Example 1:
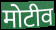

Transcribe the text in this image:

मोटीव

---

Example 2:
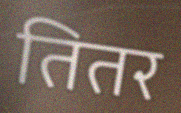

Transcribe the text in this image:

तितर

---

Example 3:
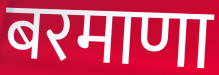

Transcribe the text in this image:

बरमाणा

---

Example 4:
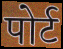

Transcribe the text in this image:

पोर्ट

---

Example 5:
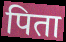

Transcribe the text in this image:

पिता